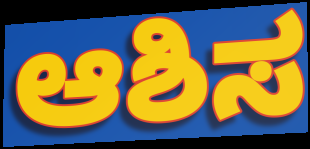
ಆಶಿಸ